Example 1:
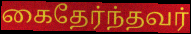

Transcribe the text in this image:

கைதேர்ந்தவர்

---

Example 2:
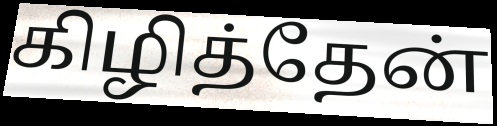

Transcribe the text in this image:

கிழித்தேன்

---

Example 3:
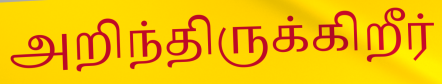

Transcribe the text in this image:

அறிந்திருக்கிறீர்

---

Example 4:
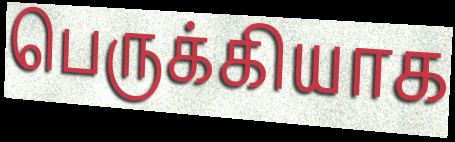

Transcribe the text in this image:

பெருக்கியாக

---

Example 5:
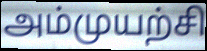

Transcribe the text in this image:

அம்முயற்சி